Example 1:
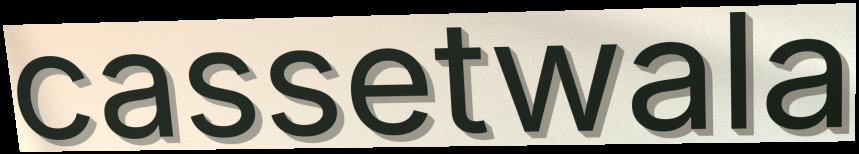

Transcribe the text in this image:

cassetwala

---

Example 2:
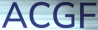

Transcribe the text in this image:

ACGF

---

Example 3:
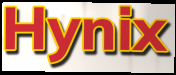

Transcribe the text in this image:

Hynix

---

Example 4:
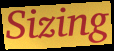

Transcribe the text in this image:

Sizing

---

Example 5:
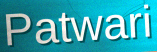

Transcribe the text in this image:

Patwari